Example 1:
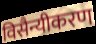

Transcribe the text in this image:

विसैन्यीकरण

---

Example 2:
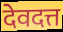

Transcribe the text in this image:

देवदत्त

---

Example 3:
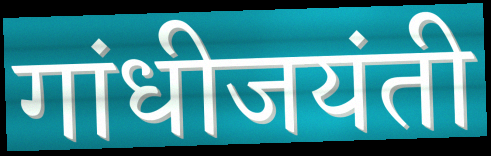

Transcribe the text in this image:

गांधीजयंती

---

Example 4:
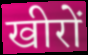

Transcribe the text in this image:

खीरों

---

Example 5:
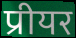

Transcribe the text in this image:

प्रीयर